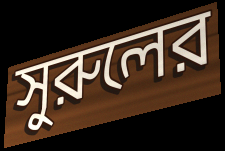
সুরুলের